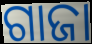
ଗାଜା